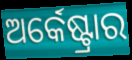
ଅର୍କେଷ୍ଟ୍ରାର